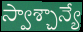
స్వాశ్చాన్యే